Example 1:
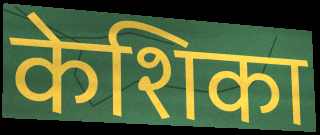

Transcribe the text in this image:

केशिका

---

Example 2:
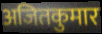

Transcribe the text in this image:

अजितकुमार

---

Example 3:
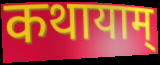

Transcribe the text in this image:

कथायाम्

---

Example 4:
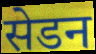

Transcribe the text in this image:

सेडन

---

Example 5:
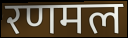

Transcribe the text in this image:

रणमल